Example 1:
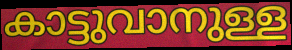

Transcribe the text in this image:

കാട്ടുവാനുള്ള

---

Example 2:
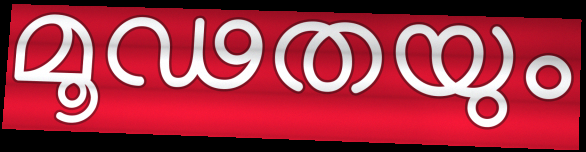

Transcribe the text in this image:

മൂഢതയും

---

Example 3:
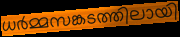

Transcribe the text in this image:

ധർമ്മസങ്കടത്തിലായി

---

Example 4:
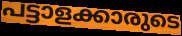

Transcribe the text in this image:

പട്ടാളക്കാരുടെ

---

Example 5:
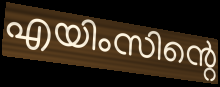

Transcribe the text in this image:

എയിംസിന്റെ